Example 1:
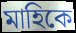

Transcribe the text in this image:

মাহিকে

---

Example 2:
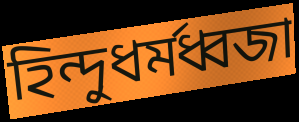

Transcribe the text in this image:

হিন্দুধর্মধ্বজা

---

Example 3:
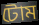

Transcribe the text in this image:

টোম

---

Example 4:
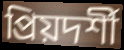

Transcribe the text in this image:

প্রিয়দর্শী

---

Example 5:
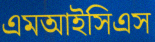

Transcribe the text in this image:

এমআইসিএস